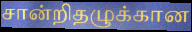
சான்றிதழுக்கான